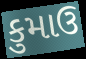
કુમાઉ